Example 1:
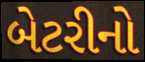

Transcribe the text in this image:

બેટરીનો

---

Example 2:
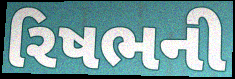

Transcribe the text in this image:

રિષભની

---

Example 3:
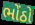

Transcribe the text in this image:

ભોંઠો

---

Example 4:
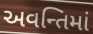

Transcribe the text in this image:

અવન્તિમાં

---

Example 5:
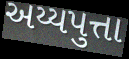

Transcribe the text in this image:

અય્યપુત્તા